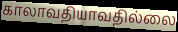
காலாவதியாவதில்லை